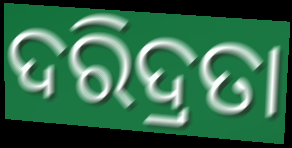
ଦରିଦ୍ରତା